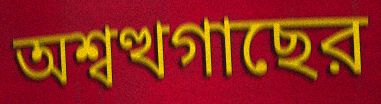
অশ্বত্থগাছের